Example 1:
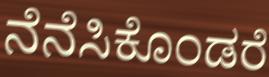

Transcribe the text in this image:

ನೆನೆಸಿಕೊಂಡರೆ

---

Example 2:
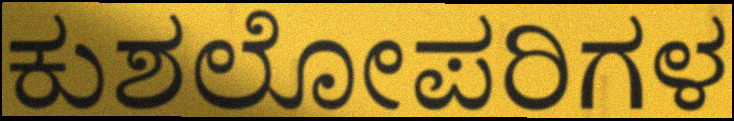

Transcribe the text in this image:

ಕುಶಲೋಪರಿಗಳ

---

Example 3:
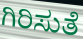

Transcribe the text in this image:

ಗಿರಿಸುತೆ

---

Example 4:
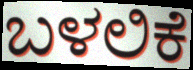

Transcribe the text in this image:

ಬಳಲಿಕೆ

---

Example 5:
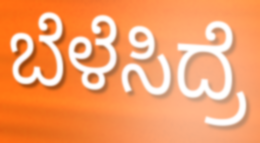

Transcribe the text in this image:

ಬೆಳೆಸಿದ್ರೆ